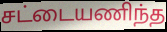
சட்டையணிந்த